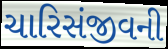
ચારિસંજીવની